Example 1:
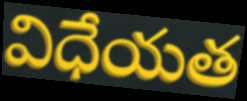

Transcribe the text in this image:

విధేయత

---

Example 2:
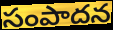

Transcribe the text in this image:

సంపాదన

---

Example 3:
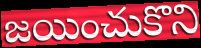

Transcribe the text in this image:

జయించుకొని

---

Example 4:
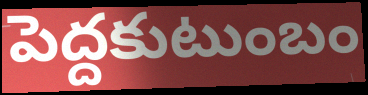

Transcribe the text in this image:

పెద్దకుటుంబం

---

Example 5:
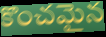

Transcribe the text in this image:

కొంచమైన